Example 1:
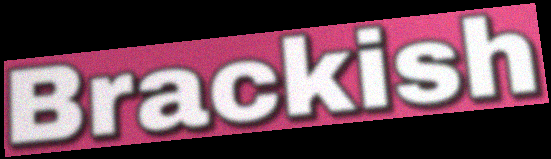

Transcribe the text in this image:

Brackish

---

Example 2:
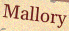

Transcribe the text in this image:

Mallory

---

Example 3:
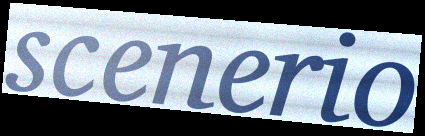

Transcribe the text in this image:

scenerio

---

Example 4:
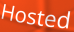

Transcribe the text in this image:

Hosted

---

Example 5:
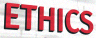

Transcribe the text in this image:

ETHICS